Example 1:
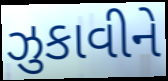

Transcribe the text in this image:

ઝુકાવીને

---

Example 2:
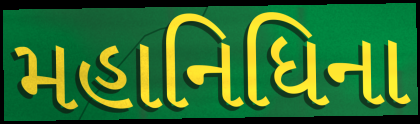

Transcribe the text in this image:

મહાનિધિના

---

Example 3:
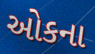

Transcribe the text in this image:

ઓકના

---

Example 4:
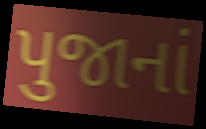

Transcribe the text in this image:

પુજાનાં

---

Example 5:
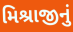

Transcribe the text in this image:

મિશ્રાજીનું